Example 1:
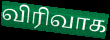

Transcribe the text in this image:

விரிவாக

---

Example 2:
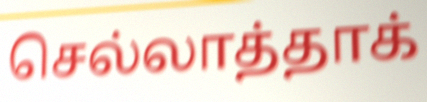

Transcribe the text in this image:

செல்லாத்தாக்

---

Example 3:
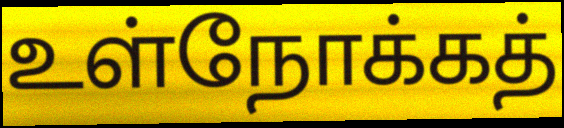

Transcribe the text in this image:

உள்நோக்கத்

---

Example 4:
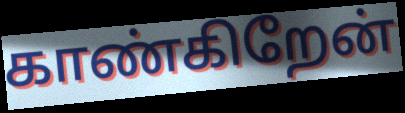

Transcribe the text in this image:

காண்கிறேன்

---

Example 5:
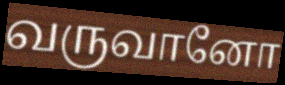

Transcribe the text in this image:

வருவானோ